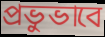
প্রভুভাবে